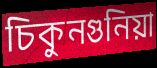
চিকুনগুনিয়া